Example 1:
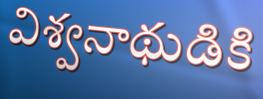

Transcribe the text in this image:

విశ్వనాథుడికి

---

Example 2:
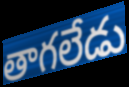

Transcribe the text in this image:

తాగలేడు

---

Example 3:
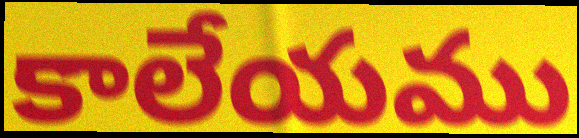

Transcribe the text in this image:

కాలేయము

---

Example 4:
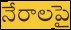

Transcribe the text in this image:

నేరాలపై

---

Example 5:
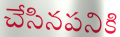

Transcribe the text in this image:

చేసినపనికి